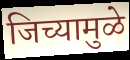
जिच्यामुळे